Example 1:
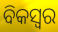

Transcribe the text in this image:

ବିକସ୍ୱର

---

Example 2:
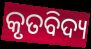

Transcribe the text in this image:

କୃତବିଦ୍ୟ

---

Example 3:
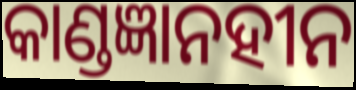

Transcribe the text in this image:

କାଣ୍ଡଜ୍ଞାନହୀନ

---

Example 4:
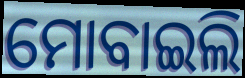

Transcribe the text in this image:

ମୋବାଇଲି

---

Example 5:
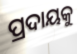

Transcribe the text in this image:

ପ୍ରଦାୟକୁ